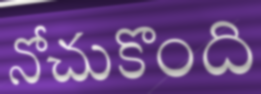
నోచుకొంది